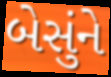
બેસુંને